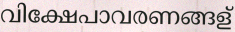
വിക്ഷേപാവരണങ്ങള്